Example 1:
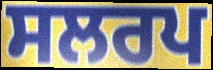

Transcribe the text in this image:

ਸਲਰਪ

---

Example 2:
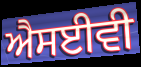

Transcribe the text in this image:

ਐਸਈਵੀ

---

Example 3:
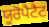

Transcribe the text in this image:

ਯੂਰੋਪੈਟੈਟ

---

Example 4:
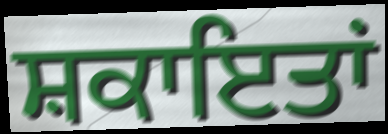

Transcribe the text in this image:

ਸ਼ਕਾਇਤਾਂ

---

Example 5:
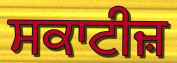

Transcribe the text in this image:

ਸਕਾਟੀਜ਼